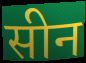
सीन